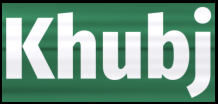
Khubj